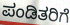
ಪಂಡಿತರಿಗೆ